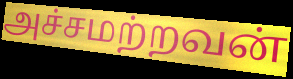
அச்சமற்றவன்